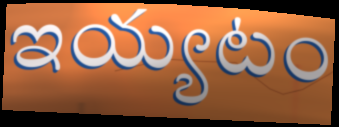
ఇయ్యటం